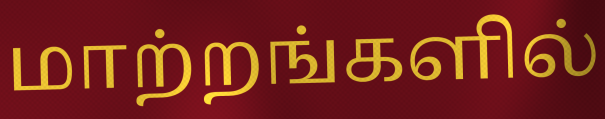
மாற்றங்களில்